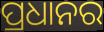
ପ୍ରଧାନର